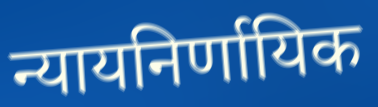
न्यायनिर्णायिक